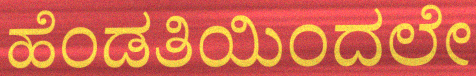
ಹೆಂಡತಿಯಿಂದಲೇ